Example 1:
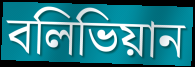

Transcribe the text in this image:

বলিভিয়ান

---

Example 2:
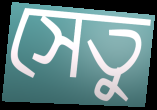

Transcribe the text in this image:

সেতু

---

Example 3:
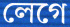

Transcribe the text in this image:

লেগে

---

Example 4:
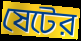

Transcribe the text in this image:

ষেটের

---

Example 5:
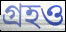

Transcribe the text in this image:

গ্রহও